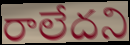
రాలేదని